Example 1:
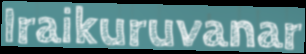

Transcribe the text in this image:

Iraikuruvanar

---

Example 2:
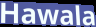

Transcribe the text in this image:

Hawala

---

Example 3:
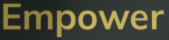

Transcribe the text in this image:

Empower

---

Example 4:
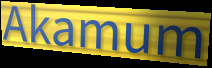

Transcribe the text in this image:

Akamum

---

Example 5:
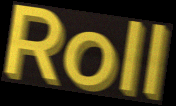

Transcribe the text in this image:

Roll